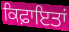
ਕਿਫ਼ਾਇਤਾਂ